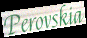
Perovskia